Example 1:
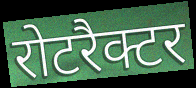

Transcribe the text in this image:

रोटरैक्टर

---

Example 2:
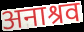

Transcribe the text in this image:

अनाश्रव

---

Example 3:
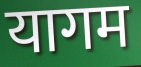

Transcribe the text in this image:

यागम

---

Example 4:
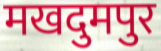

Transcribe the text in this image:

मखदुमपुर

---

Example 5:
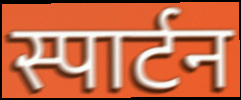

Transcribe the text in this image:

स्पार्टन